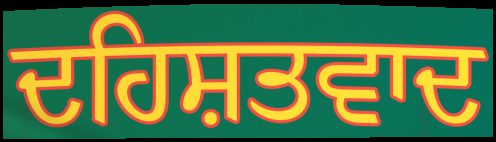
ਦਹਿਸ਼ਤਵਾਦ